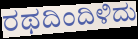
ರಥದಿಂದಿಳಿದು